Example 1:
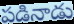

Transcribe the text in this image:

పడినాడు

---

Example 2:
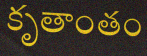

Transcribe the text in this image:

కృతాంతం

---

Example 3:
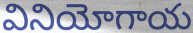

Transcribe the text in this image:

వినియోగాయ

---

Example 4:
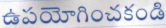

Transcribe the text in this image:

ఉపయోగించకండి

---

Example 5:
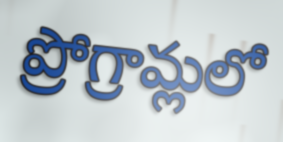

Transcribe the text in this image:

ప్రోగ్రామ్లలో